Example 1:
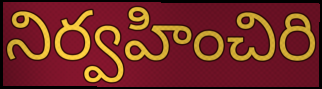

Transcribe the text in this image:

నిర్వహించిరి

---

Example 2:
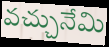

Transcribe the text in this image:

వచ్చునేమి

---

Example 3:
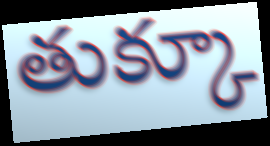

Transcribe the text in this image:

తుక్కూ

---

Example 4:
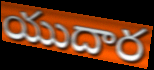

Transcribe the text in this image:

యుదార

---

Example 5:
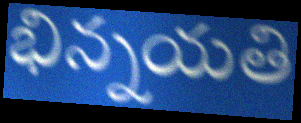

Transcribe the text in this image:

భిన్నయతి